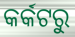
କର୍କଟରୁ